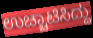
ಉಚ್ಚಾಟಿಸಿದ್ದು